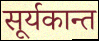
सूर्यकान्त